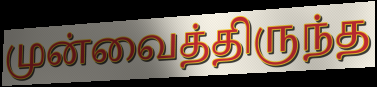
முன்வைத்திருந்த